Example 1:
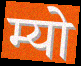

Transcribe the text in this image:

म्यो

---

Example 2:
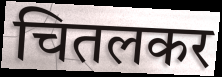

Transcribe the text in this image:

चितलकर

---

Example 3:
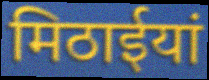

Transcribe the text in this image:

मिठाईयां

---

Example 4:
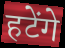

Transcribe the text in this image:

हटेंगे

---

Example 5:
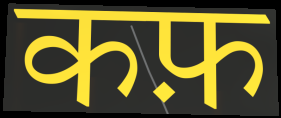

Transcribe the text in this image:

कफ़